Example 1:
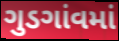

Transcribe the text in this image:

ગુડગાંવમાં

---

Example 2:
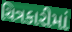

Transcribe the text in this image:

ચિત્રકારીમાં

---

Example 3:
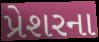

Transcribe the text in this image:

પ્રેશરના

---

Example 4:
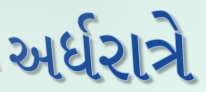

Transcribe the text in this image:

અર્ધરાત્રે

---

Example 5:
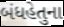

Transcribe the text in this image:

બંધહેતુના